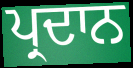
ਪ੍ਰਦਾਨ